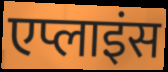
एप्लाइंस